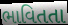
ભાવિતતા